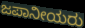
ಜಪಾನೀಯರು